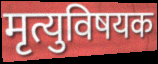
मृत्युविषयक